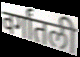
वर्गांतली